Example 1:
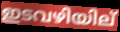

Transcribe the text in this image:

ഇടവഴിയില്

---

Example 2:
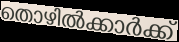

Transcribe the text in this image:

തൊഴിൽക്കാർക്ക്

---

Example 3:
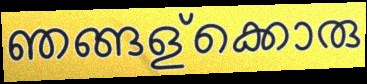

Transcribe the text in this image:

ഞങ്ങള്ക്കൊരു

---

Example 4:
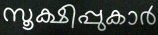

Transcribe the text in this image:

സൂക്ഷിപ്പുകാർ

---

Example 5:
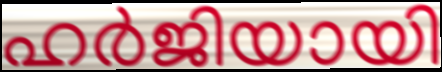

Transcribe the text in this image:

ഹർജിയായി